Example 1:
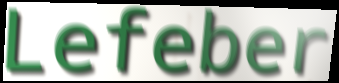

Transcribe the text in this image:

Lefeber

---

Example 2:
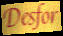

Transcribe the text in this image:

Desfor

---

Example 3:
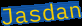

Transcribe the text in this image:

Jasdan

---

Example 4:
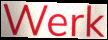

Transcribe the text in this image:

Werk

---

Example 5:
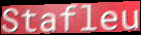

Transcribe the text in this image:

Stafleu